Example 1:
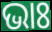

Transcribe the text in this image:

ଭାଃ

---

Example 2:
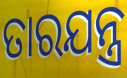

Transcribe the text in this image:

ତାରଯନ୍ତ୍ର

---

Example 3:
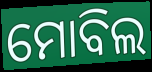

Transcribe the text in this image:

ମୋବିଲ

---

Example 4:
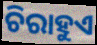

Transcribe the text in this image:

ଚିରାହୁଏ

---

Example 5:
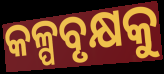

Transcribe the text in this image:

କଳ୍ପବୃକ୍ଷକୁ